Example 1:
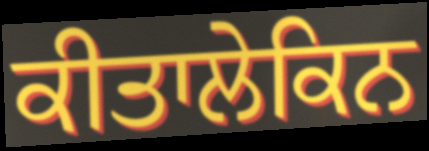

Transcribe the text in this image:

ਕੀਤਾਲੇਕਿਨ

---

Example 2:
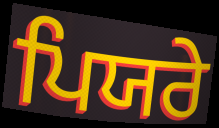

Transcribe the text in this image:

ਪਿਯਰੇ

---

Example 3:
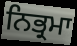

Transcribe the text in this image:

ਨਿਭ੍ਰਮਾ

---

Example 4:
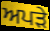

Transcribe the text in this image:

ਅਪੜੇ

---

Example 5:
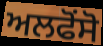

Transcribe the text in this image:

ਅਲਫੋਂਸੋ